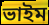
ভাইম